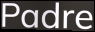
Padre